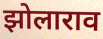
झोलाराव